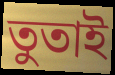
তুতাই